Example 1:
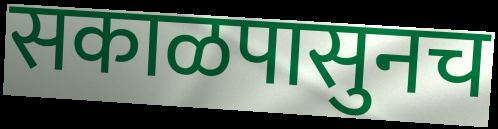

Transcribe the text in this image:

सकाळपासुनच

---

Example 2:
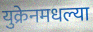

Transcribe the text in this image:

युक्रेनमधल्या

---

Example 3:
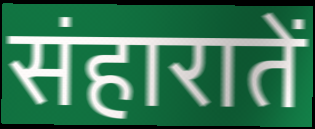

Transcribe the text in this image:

संहारातें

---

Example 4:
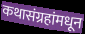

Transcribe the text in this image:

कथासंग्रहांमधून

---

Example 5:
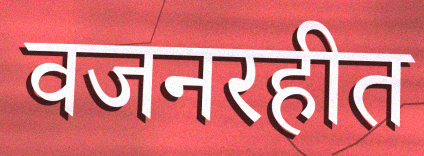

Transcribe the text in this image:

वजनरहीत